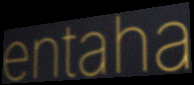
entaha